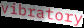
vibratory